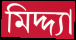
মিদ্দ্যা